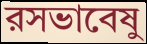
রসভাবেষু